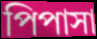
পিপাসা